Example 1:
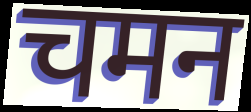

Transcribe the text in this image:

चमन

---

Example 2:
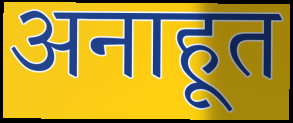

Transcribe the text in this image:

अनाहूत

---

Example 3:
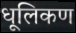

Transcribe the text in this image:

धूलिकण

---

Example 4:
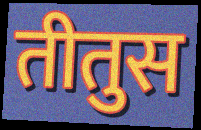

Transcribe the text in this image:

तीतुस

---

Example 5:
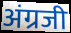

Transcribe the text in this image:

अंग्रजी